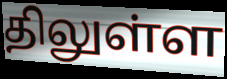
திலுள்ள